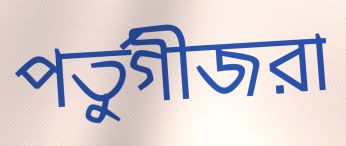
পর্তুগীজরা